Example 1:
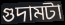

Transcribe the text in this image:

গুদামটা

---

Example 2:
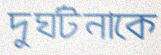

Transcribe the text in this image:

দুর্ঘটনাকে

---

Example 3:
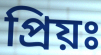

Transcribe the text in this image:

প্রিয়ঃ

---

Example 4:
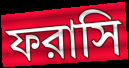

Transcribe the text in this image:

ফরাসি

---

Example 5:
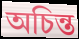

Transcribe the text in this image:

অচিন্ত